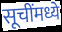
सूचींमध्ये